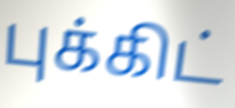
புக்கிட்